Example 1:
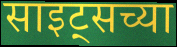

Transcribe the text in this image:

साइट्सच्या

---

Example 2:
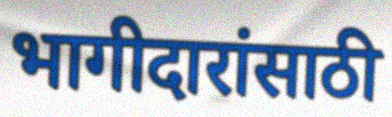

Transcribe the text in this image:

भागीदारांसाठी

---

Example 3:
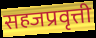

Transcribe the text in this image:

सहजप्रवृत्ती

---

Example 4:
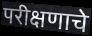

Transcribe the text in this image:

परीक्षणाचे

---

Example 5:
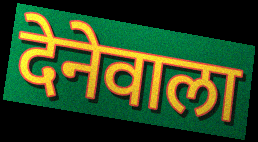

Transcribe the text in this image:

देनेवाला